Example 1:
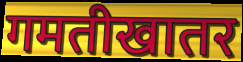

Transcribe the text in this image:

गमतीखातर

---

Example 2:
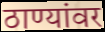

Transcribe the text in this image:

ठाण्यांवर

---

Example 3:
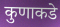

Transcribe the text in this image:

कुणाकडे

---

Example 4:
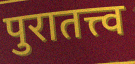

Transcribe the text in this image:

पुरातत्त्व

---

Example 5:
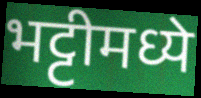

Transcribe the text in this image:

भट्टीमध्ये